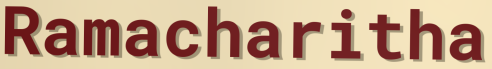
Ramacharitha